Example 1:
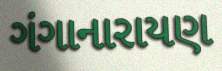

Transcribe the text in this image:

ગંગાનારાયણ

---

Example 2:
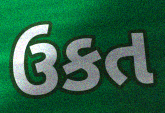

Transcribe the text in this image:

ઉકત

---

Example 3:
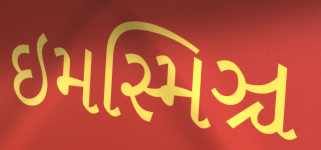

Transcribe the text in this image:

ઇમસ્મિઞ્ચ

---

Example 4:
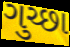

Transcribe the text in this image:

ગુચ્છા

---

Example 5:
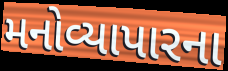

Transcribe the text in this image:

મનોવ્યાપારના